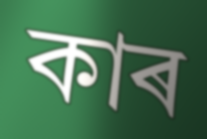
কাৰ